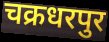
चक्रधरपुर